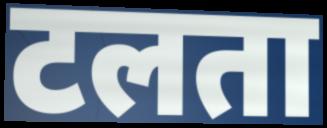
टलता